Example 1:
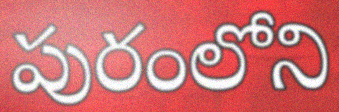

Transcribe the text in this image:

పురంలోని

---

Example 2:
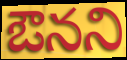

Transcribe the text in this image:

ఔనని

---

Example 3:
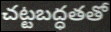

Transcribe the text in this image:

చట్టబద్ధతతో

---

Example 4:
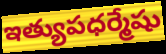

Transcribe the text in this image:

ఇత్యుపధర్మేషు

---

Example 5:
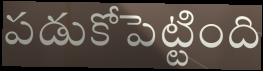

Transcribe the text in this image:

పడుకోపెట్టింది